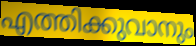
എത്തിക്കുവാനും